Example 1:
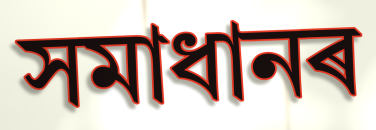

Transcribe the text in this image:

সমাধানৰ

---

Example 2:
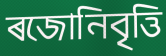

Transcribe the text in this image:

ৰজোনিবৃত্তি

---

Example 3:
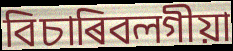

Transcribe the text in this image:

বিচাৰিবলগীয়া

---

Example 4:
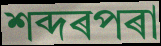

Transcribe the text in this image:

শব্দৰপৰা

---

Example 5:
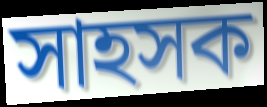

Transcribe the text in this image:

সাহসক